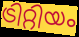
ട്രിറ്റിയം